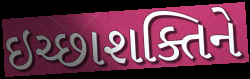
ઇચ્છાશક્તિને